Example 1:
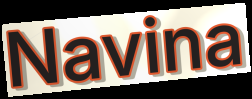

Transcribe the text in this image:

Navina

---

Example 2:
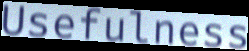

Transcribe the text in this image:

Usefulness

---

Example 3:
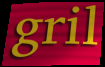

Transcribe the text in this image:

gril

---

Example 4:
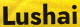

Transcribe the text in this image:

Lushai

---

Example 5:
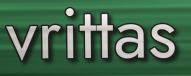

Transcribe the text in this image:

vrittas